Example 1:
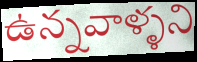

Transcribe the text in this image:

ఉన్నవాళ్ళని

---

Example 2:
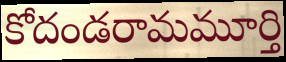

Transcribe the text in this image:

కోదండరామమూర్తి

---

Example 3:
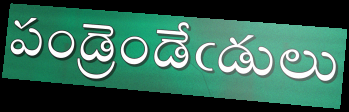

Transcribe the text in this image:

పండ్రెండేఁడులు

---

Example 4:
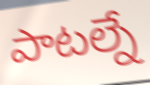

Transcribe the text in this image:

పాటల్నే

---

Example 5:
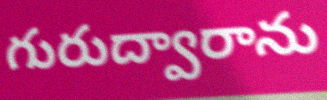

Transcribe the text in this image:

గురుద్వారాను